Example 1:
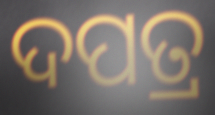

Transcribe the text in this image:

ଦପତ୍ର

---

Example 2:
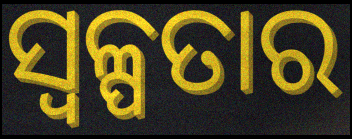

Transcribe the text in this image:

ସ୍ଵଳ୍ପତାର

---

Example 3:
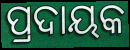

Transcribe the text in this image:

ପ୍ରଦାୟକ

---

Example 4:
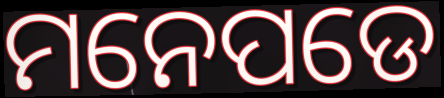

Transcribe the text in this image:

ମନେପଡେ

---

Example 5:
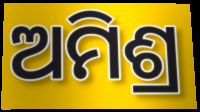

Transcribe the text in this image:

ଅମିଶ୍ର